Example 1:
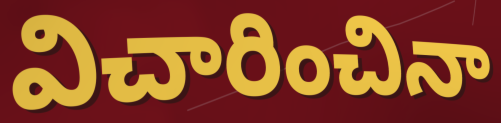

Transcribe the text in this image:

విచారించినా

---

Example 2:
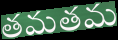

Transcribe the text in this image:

తమతమ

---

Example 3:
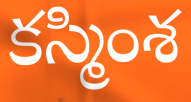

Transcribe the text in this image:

కస్మింశ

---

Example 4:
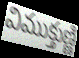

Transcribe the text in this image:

విముక్తుణ్ణి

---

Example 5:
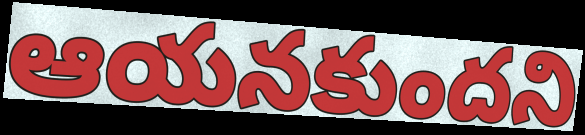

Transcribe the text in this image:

ఆయనకుందని